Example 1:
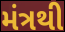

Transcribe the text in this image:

મંત્રથી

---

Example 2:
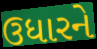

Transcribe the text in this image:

ઉધારને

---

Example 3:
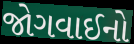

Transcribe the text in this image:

જોગવાઈનો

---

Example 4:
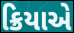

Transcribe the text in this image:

ક્રિયાએ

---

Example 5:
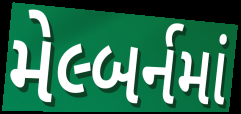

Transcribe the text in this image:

મેલ્બર્નમાં